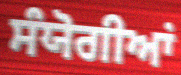
ਸੰਯੋਗੀਆਂ